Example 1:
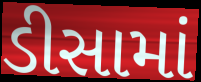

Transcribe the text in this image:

ડીસામાં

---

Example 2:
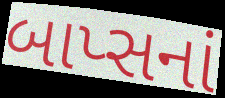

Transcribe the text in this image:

બાપ્સનાં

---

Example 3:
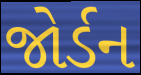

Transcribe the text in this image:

જોર્ડન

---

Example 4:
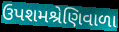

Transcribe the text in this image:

ઉપશમશ્રેણિવાળા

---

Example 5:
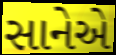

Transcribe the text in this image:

સાનેએ